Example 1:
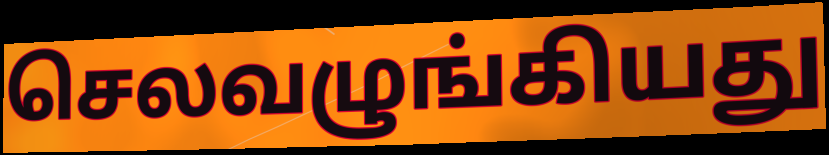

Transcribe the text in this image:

செலவழுங்கியது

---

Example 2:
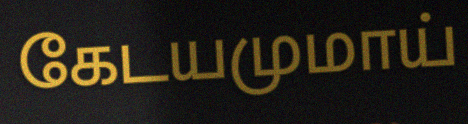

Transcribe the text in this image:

கேடயமுமாய்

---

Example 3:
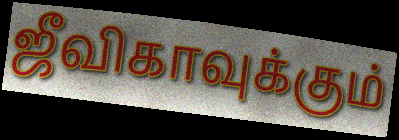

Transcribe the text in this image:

ஜீவிகாவுக்கும்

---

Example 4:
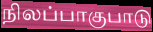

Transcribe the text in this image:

நிலப்பாகுபாடு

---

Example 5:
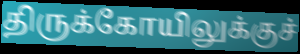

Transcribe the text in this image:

திருக்கோயிலுக்குச்